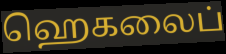
ஹெகலைப்